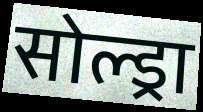
सोल्ड्रा